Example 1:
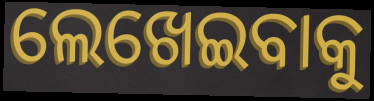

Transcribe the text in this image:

ଲେଖେଇବାକୁ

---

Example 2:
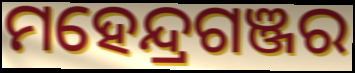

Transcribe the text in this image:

ମହେନ୍ଦ୍ରଗଞ୍ଜର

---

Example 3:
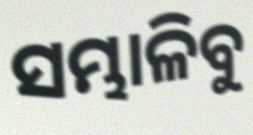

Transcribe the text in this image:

ସମ୍ଭାଳିବୁ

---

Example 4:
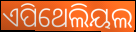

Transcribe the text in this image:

ଏପିଥେଲିୟଲ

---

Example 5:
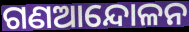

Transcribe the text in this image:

ଗଣଆନ୍ଦୋଳନ